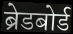
ब्रेडबोर्ड